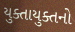
યુક્તાયુક્તનો